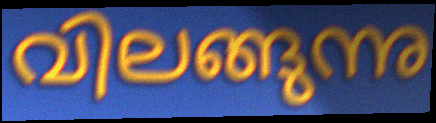
വിലങ്ങുന്നു